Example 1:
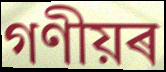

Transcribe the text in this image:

গণীয়ৰ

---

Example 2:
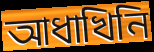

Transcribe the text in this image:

আধাখিনি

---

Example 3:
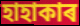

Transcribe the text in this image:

হাহাকাৰ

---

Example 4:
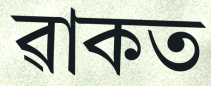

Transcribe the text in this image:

ৱাকত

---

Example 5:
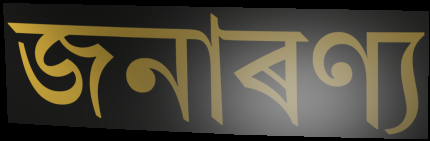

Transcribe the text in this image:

জনাৰণ্য